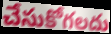
చేసుకోగలదు